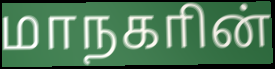
மாநகரின்